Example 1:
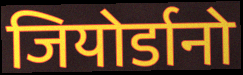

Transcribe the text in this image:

जियोर्डानो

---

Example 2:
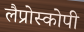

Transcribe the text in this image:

लैप्रोस्कोपी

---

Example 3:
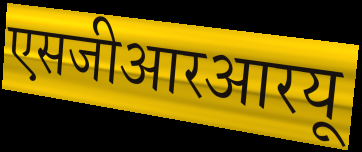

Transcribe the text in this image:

एसजीआरआरयू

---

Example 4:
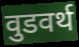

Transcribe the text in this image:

वुडवर्थ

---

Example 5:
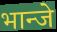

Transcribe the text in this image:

भान्जे